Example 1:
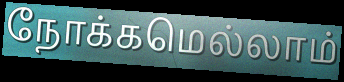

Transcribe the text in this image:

நோக்கமெல்லாம்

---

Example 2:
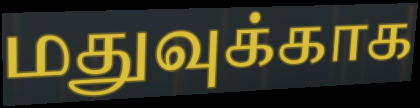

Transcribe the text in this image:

மதுவுக்காக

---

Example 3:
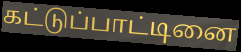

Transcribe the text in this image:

கட்டுப்பாட்டினை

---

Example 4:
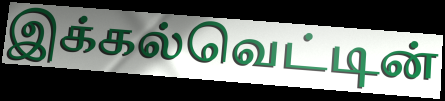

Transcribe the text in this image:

இக்கல்வெட்டின்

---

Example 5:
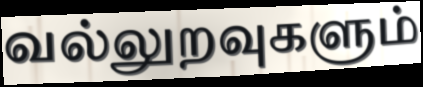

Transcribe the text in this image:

வல்லுறவுகளும்